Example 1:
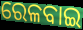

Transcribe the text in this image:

ରେଳବାଇ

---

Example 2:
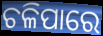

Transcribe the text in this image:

ଚଳିପାରେ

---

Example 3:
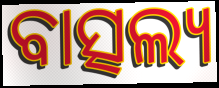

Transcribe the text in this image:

ବାତ୍ସଲ୍ଯ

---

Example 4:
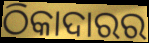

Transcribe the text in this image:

ଠିକାଦାରର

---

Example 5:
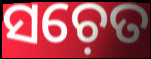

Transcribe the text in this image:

ସଚ଼େତ